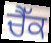
ਚੈੱਕ